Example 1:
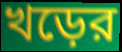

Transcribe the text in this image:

খড়ের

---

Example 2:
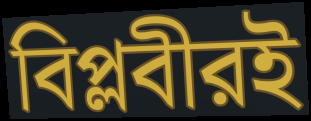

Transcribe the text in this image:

বিপ্লবীরই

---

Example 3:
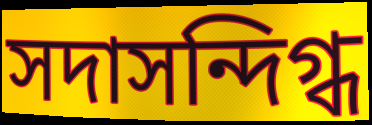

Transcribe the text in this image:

সদাসন্দিগ্ধ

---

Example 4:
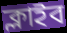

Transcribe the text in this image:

ক্লাইব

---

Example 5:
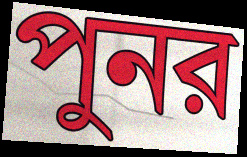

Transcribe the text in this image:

পুনর